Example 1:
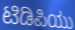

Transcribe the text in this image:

ಟಿಡಿಪಿಯು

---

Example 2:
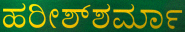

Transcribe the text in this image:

ಹರೀಶ್‌ಶರ್ಮಾ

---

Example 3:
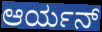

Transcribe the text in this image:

ಆರ್ಯನ್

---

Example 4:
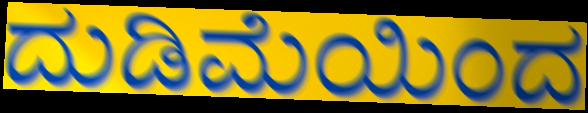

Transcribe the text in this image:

ದುಡಿಮೆಯಿಂದ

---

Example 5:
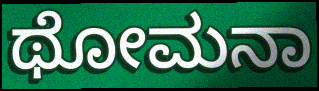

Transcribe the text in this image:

ಥೋಮನಾ